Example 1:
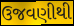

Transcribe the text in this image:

ઉજવણીથી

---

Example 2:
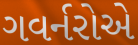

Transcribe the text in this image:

ગવર્નરોએ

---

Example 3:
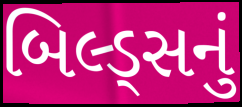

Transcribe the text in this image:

બિલ્ડ્સનું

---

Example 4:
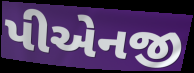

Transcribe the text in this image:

પીએનજી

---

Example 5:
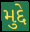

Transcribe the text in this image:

મુદ્દે